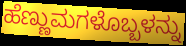
ಹೆಣ್ಣುಮಗಳೊಬ್ಬಳನ್ನು